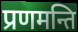
प्रणमन्ति